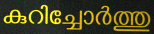
കുറിച്ചോർത്തു